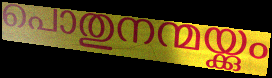
പൊതുനന്മയ്ക്കും